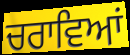
ਚਰਾਵਿਆਂ